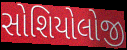
સોશિયોલોજી